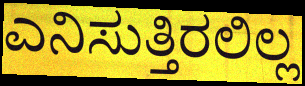
ಎನಿಸುತ್ತಿರಲಿಲ್ಲ